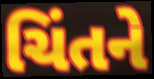
ચિંતને